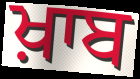
ਖ਼ਾਬ